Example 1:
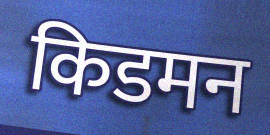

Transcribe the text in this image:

किडमन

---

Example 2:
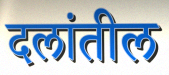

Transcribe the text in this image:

दलांतील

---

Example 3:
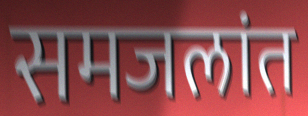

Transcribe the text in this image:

समजलांत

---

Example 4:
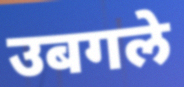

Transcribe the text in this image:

उबगले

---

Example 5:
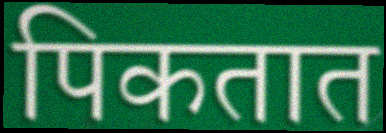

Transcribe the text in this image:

पिकतात